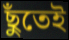
ছুঁতেই